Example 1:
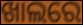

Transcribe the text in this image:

ଖାଲରେ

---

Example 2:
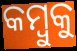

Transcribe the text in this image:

କମ୍ବୁକୁ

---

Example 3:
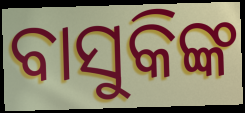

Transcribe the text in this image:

ବାସୁକିଙ୍କ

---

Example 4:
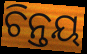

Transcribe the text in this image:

ଚିନ୍ତୟ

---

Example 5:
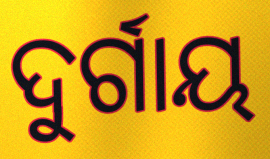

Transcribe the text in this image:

ଦୁର୍ଗାୟ